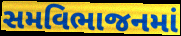
સમવિભાજનમાં